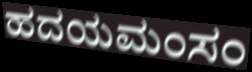
ಹದಯಮಂಸಂ